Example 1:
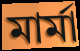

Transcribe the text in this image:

মার্মা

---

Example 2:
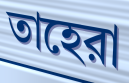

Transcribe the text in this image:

তাহেরা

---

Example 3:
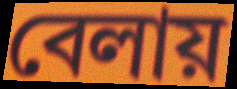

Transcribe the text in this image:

বেলায়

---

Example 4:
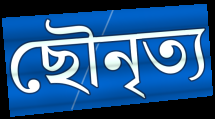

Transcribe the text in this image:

ছৌনৃত্য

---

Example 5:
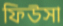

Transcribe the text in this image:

ফিউসা